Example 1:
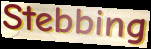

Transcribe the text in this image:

Stebbing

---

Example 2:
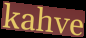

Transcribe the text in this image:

kahve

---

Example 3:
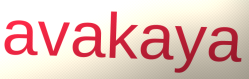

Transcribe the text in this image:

avakaya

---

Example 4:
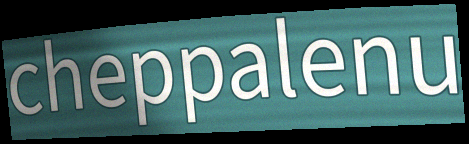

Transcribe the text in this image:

cheppalenu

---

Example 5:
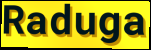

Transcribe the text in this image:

Raduga